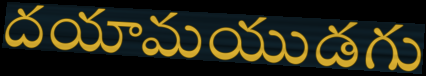
దయామయుడగు